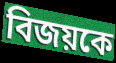
বিজয়কে